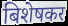
बिशेषकर